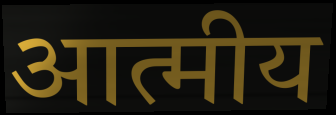
आत्मीय